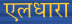
एलधारा